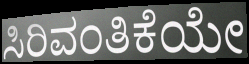
ಸಿರಿವಂತಿಕೆಯೇ